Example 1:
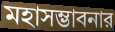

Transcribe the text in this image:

মহাসম্ভাবনার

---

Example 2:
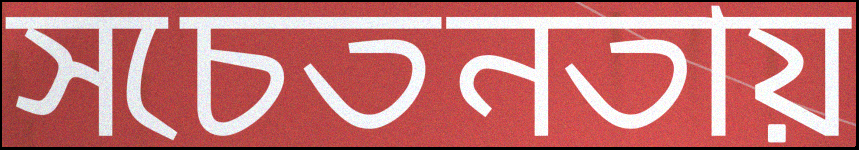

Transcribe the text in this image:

সচেতনতায়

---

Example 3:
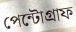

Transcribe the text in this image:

পেন্টোগ্রাফ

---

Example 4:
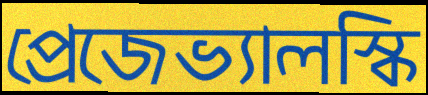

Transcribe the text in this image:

প্রেজেভ্যালস্কি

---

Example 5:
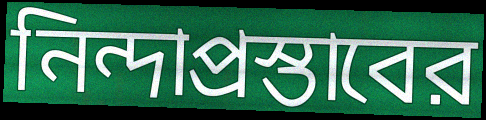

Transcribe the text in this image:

নিন্দাপ্রস্তাবের